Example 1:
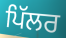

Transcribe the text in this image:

ਪਿੱਲਰ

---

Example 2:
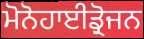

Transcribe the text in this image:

ਮੋਨੋਹਾਈਡ੍ਰੋਜਨ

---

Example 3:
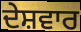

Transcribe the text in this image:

ਦੇਸ਼ਵਾਰ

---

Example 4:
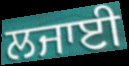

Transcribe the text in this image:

ਲਜਾਈ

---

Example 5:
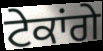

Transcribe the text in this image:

ਟੇਕਾਂਗੇ